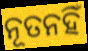
ନୂତନହିଁ